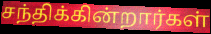
சந்திக்கின்றார்கள்